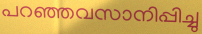
പറഞ്ഞവസാനിപ്പിച്ചു